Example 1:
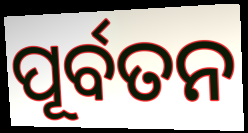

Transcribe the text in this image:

ପୂର୍ବତନ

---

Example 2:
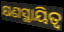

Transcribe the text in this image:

କ୍ଷଣସ୍ଥାୟିତ୍ୱ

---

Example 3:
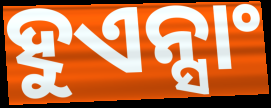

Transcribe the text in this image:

ହୁଏନ୍ସାଂ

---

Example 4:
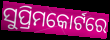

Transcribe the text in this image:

ସୁପ୍ରିମକୋର୍ଟରେ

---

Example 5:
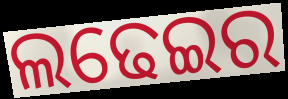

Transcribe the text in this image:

ଲଢେଇର